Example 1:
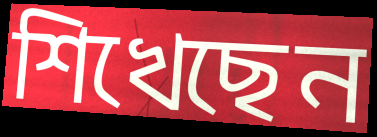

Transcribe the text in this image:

শিখেছেন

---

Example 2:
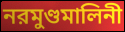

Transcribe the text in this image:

নরমুণ্ডমালিনী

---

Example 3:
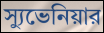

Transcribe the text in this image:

স্যুভেনিয়ার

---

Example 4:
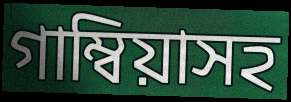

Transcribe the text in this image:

গাম্বিয়াসহ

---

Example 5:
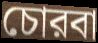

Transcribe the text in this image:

চোরবা